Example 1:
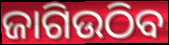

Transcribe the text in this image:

ଜାଗିଉଠିବ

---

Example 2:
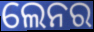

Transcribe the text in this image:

ଲେନର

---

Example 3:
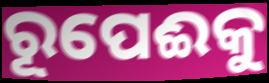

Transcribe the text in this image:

ରୂପେଈକୁ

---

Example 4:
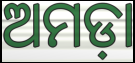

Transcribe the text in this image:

ଅମଡ଼ା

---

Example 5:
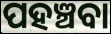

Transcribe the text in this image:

ପହଞ୍ଚବା